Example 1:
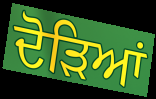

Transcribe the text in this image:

ਦੋੜਿਆਂ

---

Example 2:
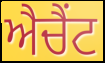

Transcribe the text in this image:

ਐਚੈਂਟ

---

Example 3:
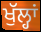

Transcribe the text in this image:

ਖੁੱਲ੍ਹਾਂ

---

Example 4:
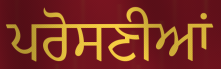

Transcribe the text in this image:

ਪਰੋਸਣੀਆਂ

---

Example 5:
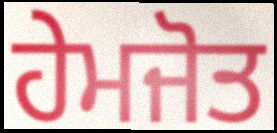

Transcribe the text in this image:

ਹੇਮਜੋਤ